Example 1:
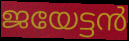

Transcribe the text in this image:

ജയേട്ടൻ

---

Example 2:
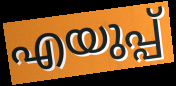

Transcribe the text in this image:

എയുപ്പ്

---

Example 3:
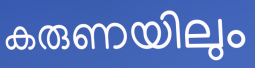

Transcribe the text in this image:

കരുണയിലും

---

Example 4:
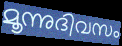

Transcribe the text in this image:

മൂന്നുദിവസം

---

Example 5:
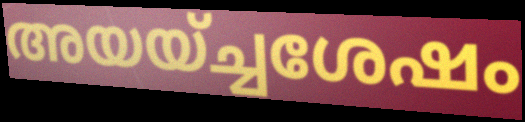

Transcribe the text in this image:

അയയ്ച്ചശേഷം